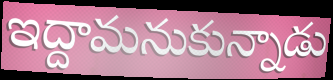
ఇద్దామనుకున్నాడు